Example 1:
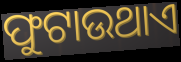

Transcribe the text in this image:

ଫୁଟାଉଥାଏ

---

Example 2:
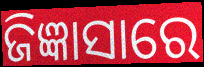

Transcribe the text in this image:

ଜିଜ୍ଞାସାରେ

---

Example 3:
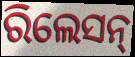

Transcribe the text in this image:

ରିଲେସନ୍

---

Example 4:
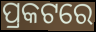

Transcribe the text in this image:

ପ୍ରକଟରେ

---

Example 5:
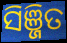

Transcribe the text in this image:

ସିଞ୍ଜିତ